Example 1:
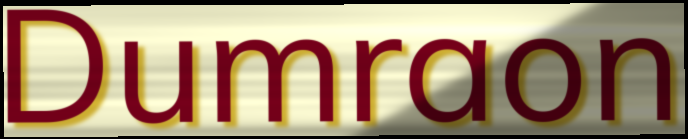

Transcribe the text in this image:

Dumraon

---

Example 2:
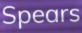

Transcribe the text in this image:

Spears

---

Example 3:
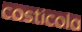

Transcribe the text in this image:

costicola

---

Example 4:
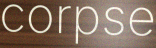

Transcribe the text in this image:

corpse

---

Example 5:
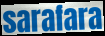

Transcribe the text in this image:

sarafara